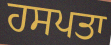
ਹਸਪਤਾ